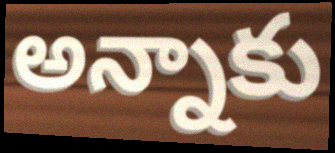
అన్నాకు